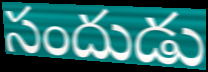
సందుడు